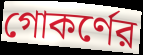
গোকর্ণের